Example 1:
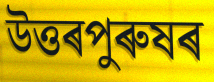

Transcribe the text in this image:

উত্তৰপুৰুষৰ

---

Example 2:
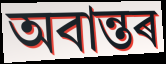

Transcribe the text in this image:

অবান্তৰ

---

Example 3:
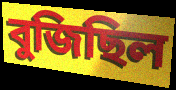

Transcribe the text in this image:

বুজিছিল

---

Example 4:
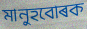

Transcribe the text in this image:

মানুহবোৰক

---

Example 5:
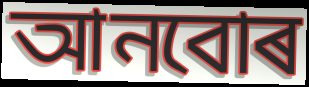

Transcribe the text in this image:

আনবোৰ